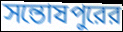
সন্তোষপুরের